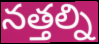
నత్తల్ని